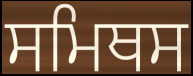
ਸਮਿਥਸ